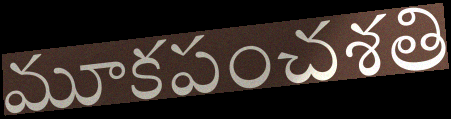
మూకపంచశతి